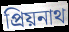
প্রিয়নাথ